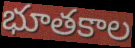
భూతకాల